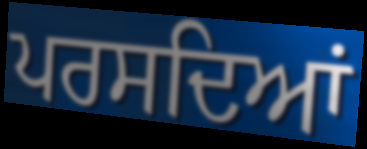
ਪਰਸਦਿਆਂ